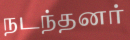
நடந்தனர்